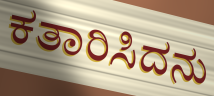
ಕತಾರಿಸಿದನು